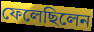
ফেলেছিলেন